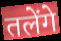
तलेंगे